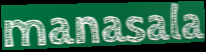
manasala